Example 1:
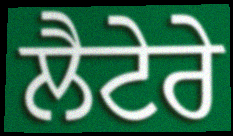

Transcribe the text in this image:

ਲੈਟੇਰੇ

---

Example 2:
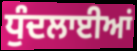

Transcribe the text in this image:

ਧੁੰਦਲਾਈਆਂ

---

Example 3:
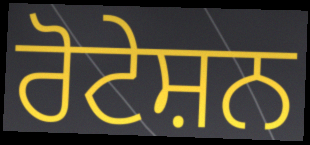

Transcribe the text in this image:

ਰੋਟੇਸ਼ਨ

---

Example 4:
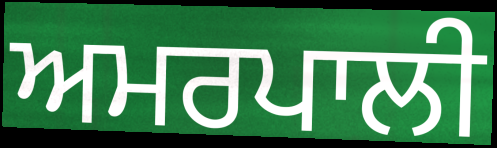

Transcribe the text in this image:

ਅਮਰਪਾਲੀ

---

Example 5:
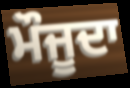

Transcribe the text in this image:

ਮੌਜੂਦਾ